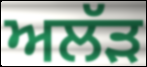
ਅਲੱੜ